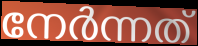
നേർന്നത്